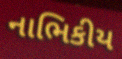
નાભિકીય